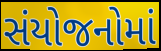
સંયોજનોમાં